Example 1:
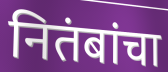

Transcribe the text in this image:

नितंबांचा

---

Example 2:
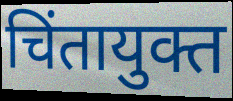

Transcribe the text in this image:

चिंतायुक्त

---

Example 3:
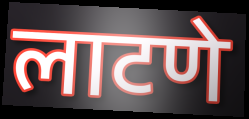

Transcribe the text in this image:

लाटणे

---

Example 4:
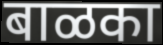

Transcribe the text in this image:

बाळका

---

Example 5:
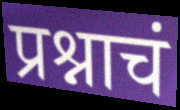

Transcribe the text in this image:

प्रश्नाचं